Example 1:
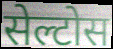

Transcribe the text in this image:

सेल्टोस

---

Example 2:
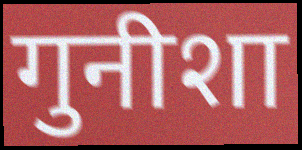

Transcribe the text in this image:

गुनीशा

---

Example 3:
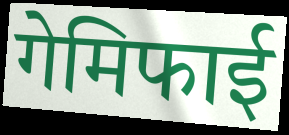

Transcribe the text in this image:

गेमिफाई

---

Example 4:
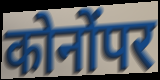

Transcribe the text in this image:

कोनोंपर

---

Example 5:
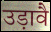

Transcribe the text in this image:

उड़ावै